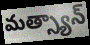
మత్స్యాన్